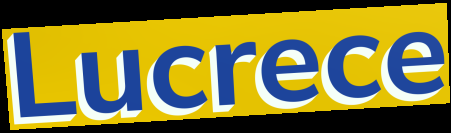
Lucrece